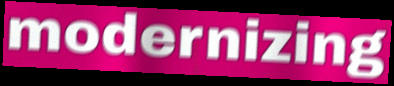
modernizing